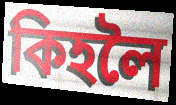
কিহলৈ